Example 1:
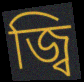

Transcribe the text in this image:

জ্বি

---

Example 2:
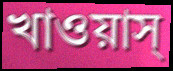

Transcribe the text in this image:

খাওয়াস্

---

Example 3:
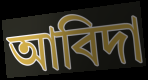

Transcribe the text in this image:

আবিদা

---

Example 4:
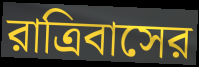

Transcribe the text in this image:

রাত্রিবাসের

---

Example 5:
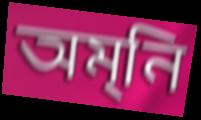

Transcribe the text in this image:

অম্‌নি